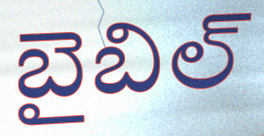
బైబిల్